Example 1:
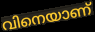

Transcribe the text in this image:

വിനെയാണ്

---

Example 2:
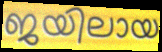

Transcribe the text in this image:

ജയിലായ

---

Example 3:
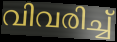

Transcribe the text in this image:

വിവരിച്ച്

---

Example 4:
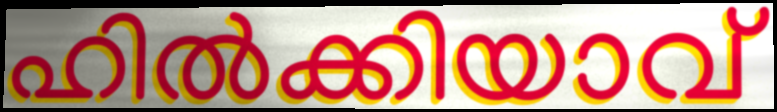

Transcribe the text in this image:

ഹിൽക്കിയാവ്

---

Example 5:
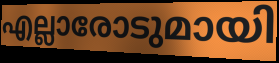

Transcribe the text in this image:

എല്ലാരോടുമായി